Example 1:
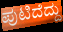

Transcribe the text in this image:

ಪುಟಿದೆದ್ದು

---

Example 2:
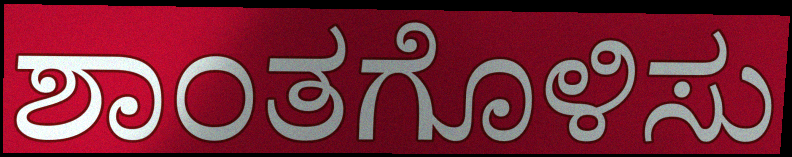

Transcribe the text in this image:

ಶಾಂತಗೊಳಿಸು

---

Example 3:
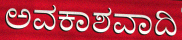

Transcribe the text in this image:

ಅವಕಾಶವಾದಿ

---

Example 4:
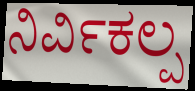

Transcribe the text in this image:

ನಿರ್ವಿಕಲ್ಪ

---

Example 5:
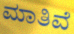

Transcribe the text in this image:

ಮಾತಿವೆ